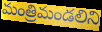
మంత్రిమండలిని